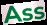
Ass